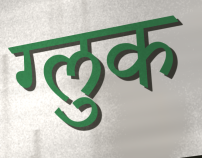
ग्लुक